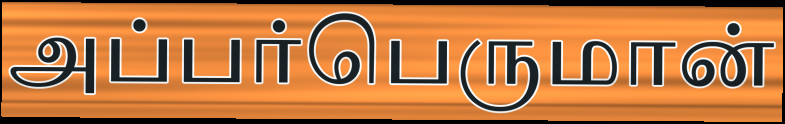
அப்பர்பெருமான்